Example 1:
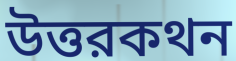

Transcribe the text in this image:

উত্তরকথন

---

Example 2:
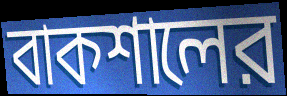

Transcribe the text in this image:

বাকশালের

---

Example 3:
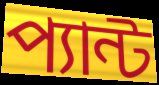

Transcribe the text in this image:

প্যান্ট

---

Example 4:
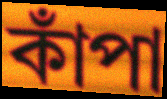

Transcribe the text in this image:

কাঁপা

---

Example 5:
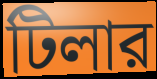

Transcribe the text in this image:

টিলার